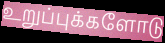
உறுப்புக்களோடு